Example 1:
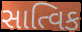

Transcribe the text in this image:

સાત્વિક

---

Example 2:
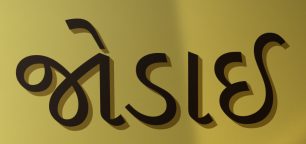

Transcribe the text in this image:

જોડાઈ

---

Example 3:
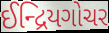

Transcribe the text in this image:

ઈન્દ્રિયગોચર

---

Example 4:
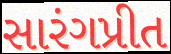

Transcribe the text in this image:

સારંગપ્રીત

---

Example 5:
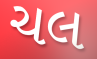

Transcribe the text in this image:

ચલ